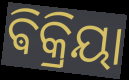
ଵିକ୍ରିୟା